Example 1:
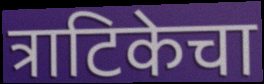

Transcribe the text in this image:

त्राटिकेचा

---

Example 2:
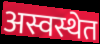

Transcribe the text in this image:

अस्वस्थेत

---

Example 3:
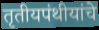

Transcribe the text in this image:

तृतीयपंथीयांचे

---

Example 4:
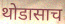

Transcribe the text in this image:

थोडासाच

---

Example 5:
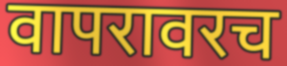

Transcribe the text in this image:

वापरावरच